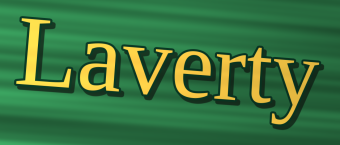
Laverty